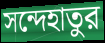
সন্দেহাতুর